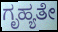
ಗೃಹ್ಯತೇ